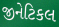
જીનેટિકલ